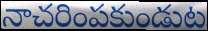
నాచరింపకుండుట